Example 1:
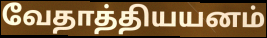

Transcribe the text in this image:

வேதாத்தியயனம்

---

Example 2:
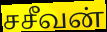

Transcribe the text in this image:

சசீவன்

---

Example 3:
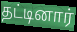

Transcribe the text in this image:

தட்டினார்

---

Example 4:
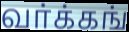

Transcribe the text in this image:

வர்க்கங்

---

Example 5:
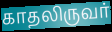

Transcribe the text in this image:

காதலிருவர்